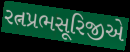
રત્નપ્રભસૂરિજીએ